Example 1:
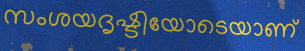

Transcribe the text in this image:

സംശയദൃഷ്ടിയോടെയാണ്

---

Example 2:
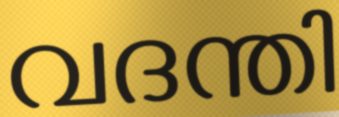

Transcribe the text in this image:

വദന്തി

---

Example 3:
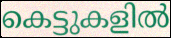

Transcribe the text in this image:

കെട്ടുകളിൽ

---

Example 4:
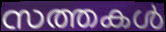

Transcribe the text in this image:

സത്തകൾ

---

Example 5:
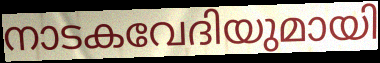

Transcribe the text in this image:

നാടകവേദിയുമായി